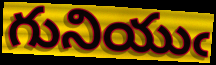
గునియుఁ